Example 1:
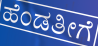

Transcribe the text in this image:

ಹೆಂಡತೀಗೆ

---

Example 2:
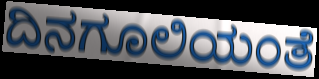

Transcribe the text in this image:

ದಿನಗೂಲಿಯಂತೆ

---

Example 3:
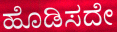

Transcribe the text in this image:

ಹೊಡಿಸದೇ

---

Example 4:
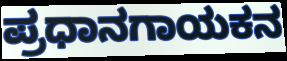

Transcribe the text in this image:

ಪ್ರಧಾನಗಾಯಕನ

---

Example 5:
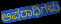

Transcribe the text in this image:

ಅಪರಾಧಿಗಳು